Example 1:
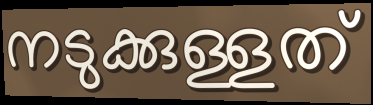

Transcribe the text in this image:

നടുക്കുള്ളത്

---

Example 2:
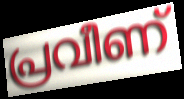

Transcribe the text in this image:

പ്രവീണ്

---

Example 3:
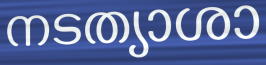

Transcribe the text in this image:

നടത്യാശാ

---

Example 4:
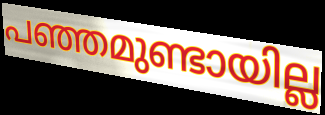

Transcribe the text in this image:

പഞ്ഞമുണ്ടായില്ല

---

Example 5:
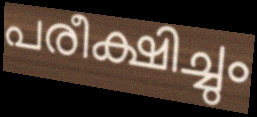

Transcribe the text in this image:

പരീക്ഷിച്ചും